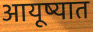
आयूष्यात